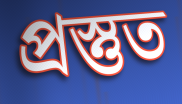
প্রস্তুত